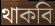
থাকবি